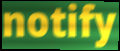
notify